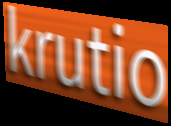
krutio